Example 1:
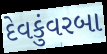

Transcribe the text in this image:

દેવકુંવરબા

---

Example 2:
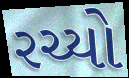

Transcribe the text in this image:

રચ્યો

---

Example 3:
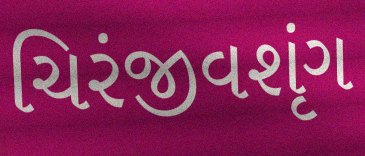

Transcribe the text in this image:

ચિરંજીવશૃંગ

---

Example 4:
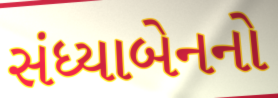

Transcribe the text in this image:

સંધ્યાબેનનો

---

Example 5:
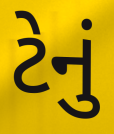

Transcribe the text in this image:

ટેનું